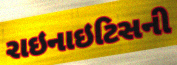
રાઇનાઇટિસની